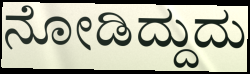
ನೋಡಿದ್ದುದು